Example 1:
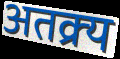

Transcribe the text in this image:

अतक्र्य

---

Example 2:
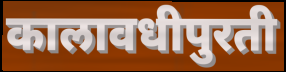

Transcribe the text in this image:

कालावधीपुरती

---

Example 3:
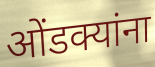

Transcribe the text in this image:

ओंडक्यांना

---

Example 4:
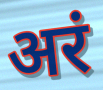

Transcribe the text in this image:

अरं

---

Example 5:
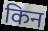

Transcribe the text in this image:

किन